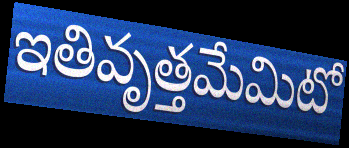
ఇతివృత్తమేమిటో